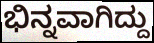
ಭಿನ್ನವಾಗಿದ್ದು